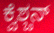
ಕ್ವೆಶ್ಚನ್